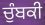
ਚੁੰਬਕੀ